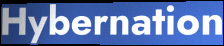
Hybernation